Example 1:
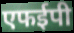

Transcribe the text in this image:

एफईपी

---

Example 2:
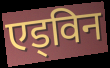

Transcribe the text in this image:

एड्विन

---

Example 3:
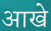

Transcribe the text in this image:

आखे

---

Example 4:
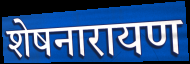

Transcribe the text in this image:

शेषनारायण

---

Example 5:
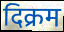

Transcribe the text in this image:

दिक्रम